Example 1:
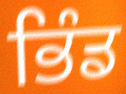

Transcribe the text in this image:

ਭਿੰਡ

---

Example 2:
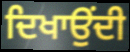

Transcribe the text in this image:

ਦਿਖਾਉਂਦੀ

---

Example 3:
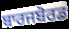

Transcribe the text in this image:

ਬਾਰਜਬੋਰਡ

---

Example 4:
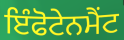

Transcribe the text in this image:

ਇੰਫੋਟੇਨਮੈਂਟ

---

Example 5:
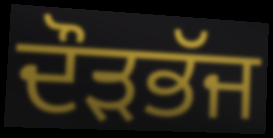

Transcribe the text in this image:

ਦੌੜਭੱਜ